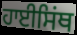
ਹਾਈਸਿਂਥ